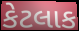
કેટલાક